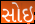
સોઇ